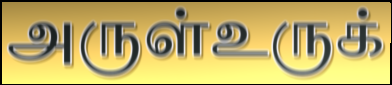
அருள்உருக்